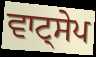
ਵਾਟ੍ਸੇਪ